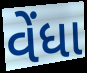
વેંધા